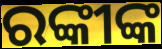
ରଙ୍କୀଙ୍କ